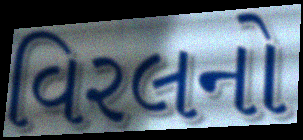
વિરલનો